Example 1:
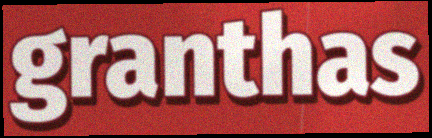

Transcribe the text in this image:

granthas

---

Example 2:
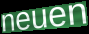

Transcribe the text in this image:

neuen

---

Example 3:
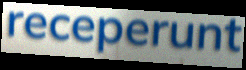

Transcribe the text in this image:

receperunt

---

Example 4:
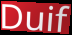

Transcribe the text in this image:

Duif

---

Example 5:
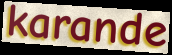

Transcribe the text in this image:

karande